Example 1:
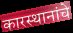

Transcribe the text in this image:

कारस्थानांचे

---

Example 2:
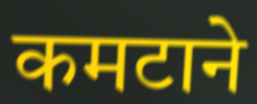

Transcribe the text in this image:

कमटाने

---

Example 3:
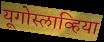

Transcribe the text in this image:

यूगोस्लाव्हिया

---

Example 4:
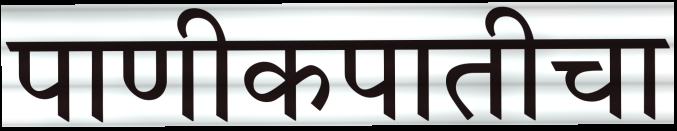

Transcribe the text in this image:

पाणीकपातीचा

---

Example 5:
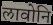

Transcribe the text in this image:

लावोनि